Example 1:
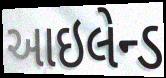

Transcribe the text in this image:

આઇલેન્ડ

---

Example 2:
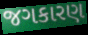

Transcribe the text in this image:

જગકારણ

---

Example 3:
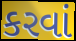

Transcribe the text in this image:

કરવાં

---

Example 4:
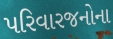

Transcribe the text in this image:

પરિવારજનોના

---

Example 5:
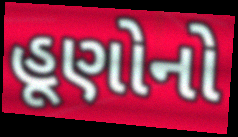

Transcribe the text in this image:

હૂણોનો